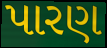
પારણ